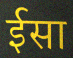
ईसा